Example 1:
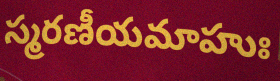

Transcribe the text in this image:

స్మరణీయమాహుః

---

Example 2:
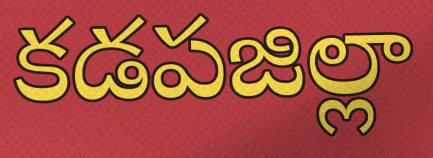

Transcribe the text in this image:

కడపజిల్లా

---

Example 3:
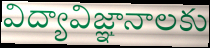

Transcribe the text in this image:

విద్యావిజ్ఞానాలకు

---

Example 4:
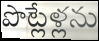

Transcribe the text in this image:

పొట్లేళ్లను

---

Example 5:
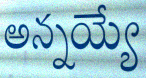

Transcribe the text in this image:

అన్నయ్యే